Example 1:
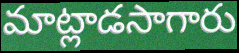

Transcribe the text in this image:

మాట్లాడసాగారు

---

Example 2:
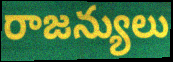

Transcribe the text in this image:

రాజన్యులు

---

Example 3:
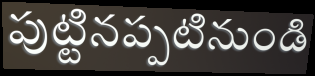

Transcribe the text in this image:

పుట్టినప్పటినుండి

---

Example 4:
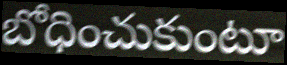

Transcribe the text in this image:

బోధించుకుంటూ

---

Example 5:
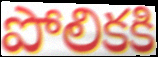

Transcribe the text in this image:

పోలికకి